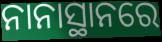
ନାନାସ୍ଥାନରେ